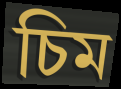
চিম